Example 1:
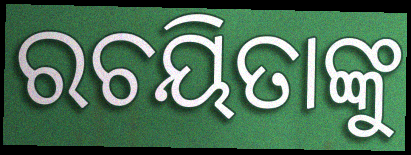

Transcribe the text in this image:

ରଚୟିତାଙ୍କୁ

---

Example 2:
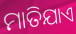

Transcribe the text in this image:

ମାତିଯାଏ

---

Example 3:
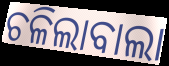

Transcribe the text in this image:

ଚଳିଲାବାଲା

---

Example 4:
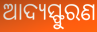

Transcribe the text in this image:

ଆଦ୍ୟସ୍ଫୁରଣ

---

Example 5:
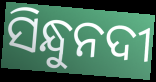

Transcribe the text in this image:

ସିନ୍ଧୁନଦୀ